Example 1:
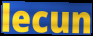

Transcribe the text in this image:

lecun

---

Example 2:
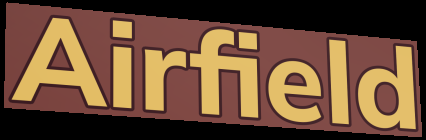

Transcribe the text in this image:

Airfield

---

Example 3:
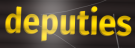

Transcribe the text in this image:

deputies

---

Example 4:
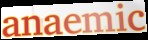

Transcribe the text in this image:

anaemic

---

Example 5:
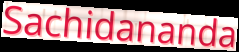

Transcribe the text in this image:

Sachidananda